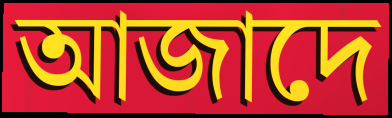
আজাদে